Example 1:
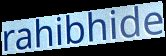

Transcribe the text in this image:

rahibhide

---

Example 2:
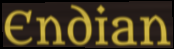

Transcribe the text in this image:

Endian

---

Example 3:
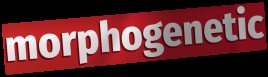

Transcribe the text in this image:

morphogenetic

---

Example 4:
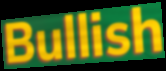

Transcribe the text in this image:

Bullish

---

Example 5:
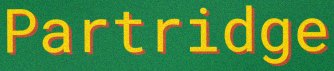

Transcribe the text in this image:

Partridge